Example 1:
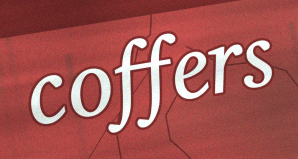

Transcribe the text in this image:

coffers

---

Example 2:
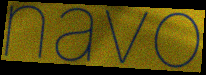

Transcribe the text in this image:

navo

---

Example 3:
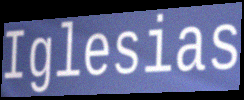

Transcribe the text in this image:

Iglesias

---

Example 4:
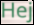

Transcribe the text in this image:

Hej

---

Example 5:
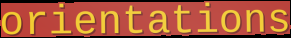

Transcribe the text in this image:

orientations